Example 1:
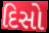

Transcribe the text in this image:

દિસો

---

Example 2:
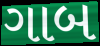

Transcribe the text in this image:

ગાબ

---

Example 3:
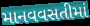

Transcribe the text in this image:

માનવવસતીમાં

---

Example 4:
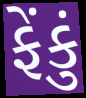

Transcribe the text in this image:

ફેંકું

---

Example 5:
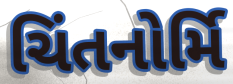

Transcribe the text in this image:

ચિંતનોર્મિ